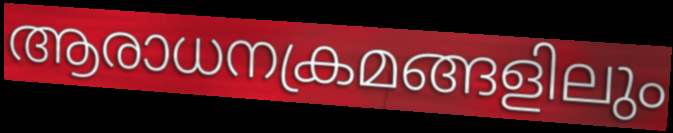
ആരാധനക്രമങ്ങളിലും